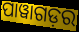
ପାୱାଗଡ଼ର